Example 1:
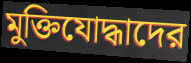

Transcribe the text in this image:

মুক্তিযোদ্ধাদের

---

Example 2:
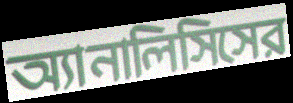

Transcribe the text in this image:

অ্যানালিসিসের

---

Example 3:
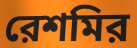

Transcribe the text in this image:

রেশমির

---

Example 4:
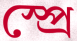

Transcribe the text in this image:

স্প্রে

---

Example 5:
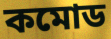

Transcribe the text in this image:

কমোড